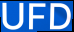
UFD